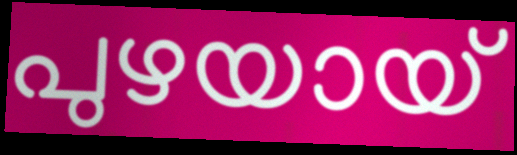
പുഴയായ്